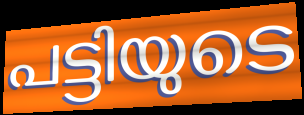
പട്ടിയുടെ